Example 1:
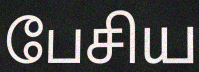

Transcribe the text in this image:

பேசிய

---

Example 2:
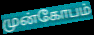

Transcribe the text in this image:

முன்கோபம்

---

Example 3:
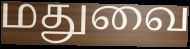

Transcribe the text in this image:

மதுவை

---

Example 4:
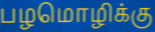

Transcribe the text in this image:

பழமொழிக்கு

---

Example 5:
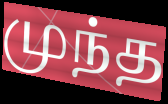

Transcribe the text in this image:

முந்த